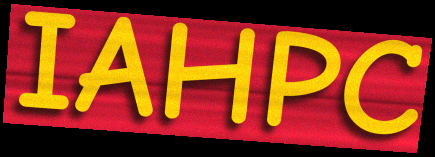
IAHPC